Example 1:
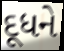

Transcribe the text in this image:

દૂધને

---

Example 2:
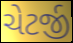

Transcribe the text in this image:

ચેટર્જી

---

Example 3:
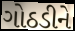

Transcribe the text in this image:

ગોઠડીને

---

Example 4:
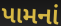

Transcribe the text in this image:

પામનાં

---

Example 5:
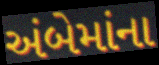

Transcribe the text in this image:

અંબેમાંના